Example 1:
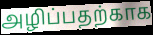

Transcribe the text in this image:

அழிப்பதற்காக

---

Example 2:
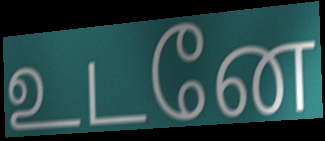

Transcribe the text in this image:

உடனே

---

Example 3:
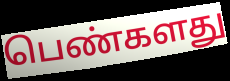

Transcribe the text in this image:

பெண்களது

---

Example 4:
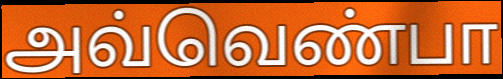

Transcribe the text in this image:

அவ்வெண்பா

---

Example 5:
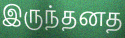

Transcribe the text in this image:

இருந்தனத